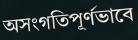
অসংগতিপূর্ণভাবে